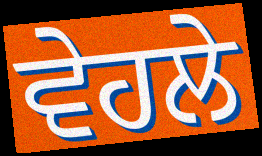
ਵੇਹਲੇ